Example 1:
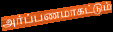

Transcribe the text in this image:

அர்ப்பணமாகட்டும்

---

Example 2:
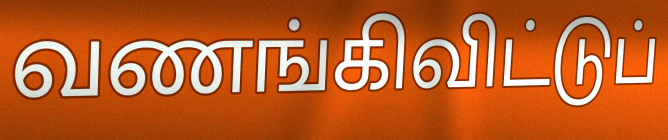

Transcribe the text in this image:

வணங்கிவிட்டுப்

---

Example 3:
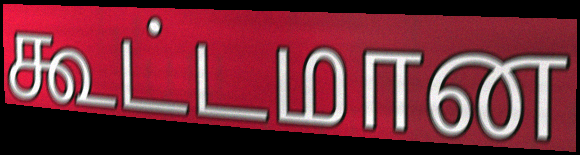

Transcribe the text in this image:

கூட்டமான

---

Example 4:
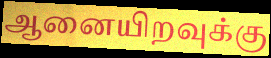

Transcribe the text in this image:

ஆனையிறவுக்கு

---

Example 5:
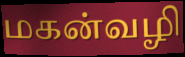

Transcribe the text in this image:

மகன்வழி